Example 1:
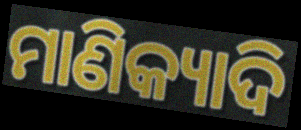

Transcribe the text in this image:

ମାଣିକ୍ୟାଦି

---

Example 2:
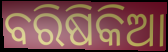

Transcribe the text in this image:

ବରିଷିକିଆ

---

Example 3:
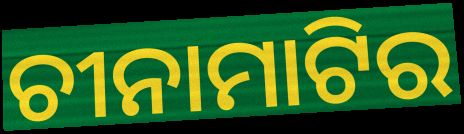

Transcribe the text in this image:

ଚୀନାମାଟିର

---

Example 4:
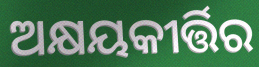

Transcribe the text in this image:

ଅକ୍ଷୟକୀର୍ତ୍ତିର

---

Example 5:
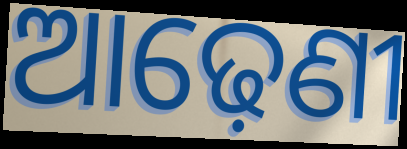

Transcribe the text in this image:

ଆଢ଼େଣୀ